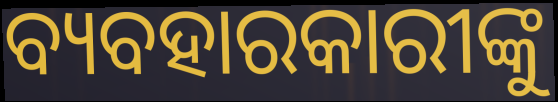
ବ୍ୟବହାରକାରୀଙ୍କୁ